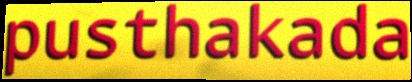
pusthakada